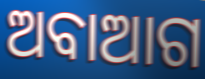
ଅବାଆଗ